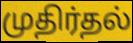
முதிர்தல்